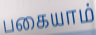
பகையாம்